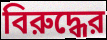
বিরুদ্ধের